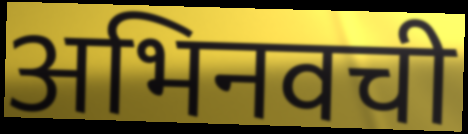
अभिनवची